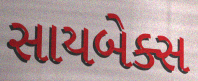
સાયબેક્સ